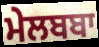
ਮੇਲਬਬਾ